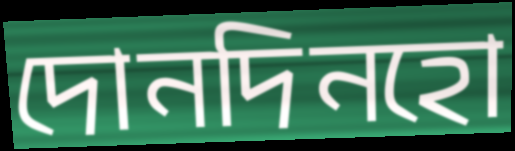
দোনদিনহো